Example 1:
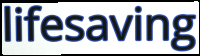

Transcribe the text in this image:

lifesaving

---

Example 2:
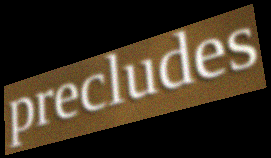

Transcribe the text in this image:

precludes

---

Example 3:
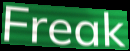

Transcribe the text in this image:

Freak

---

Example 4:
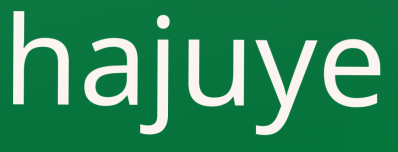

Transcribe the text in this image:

hajuye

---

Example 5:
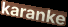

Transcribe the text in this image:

karanke